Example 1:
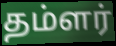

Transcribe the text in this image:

தம்ளர்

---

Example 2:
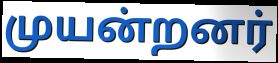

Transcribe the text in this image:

முயன்றனர்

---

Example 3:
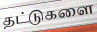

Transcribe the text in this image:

தட்டுகளை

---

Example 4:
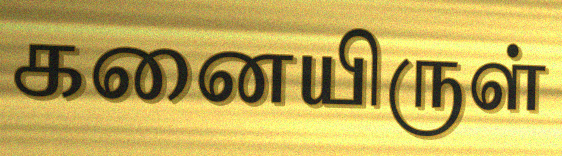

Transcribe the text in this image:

கனையிருள்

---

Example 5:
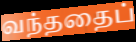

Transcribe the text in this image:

வந்ததைப்